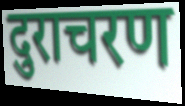
दुराचरण